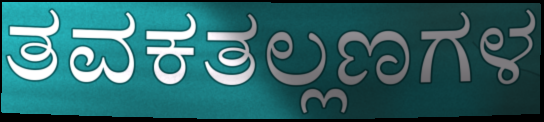
ತವಕತಲ್ಲಣಗಳ